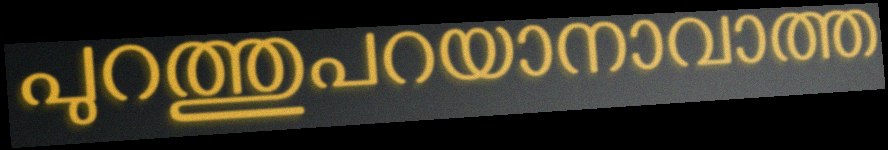
പുറത്തുപറയാനാവാത്ത